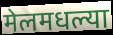
मेलमधल्या